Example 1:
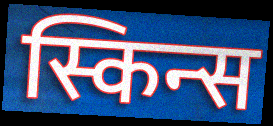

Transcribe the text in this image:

स्किन्स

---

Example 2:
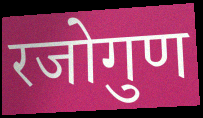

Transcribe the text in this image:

रजोगुण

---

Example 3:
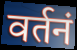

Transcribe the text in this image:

वर्तनं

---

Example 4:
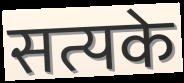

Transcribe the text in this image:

सत्यके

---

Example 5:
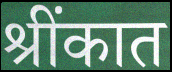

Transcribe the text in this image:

श्रींकात